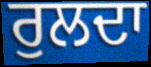
ਰੁਲਦਾ